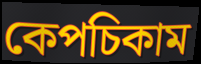
কেপচিকাম